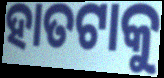
ହାତଟାକୁ